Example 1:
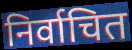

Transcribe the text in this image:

निर्वाचित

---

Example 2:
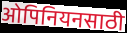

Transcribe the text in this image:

ओपिनियनसाठी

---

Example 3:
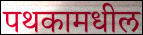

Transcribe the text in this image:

पथकामधील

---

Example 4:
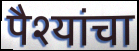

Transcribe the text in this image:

पैश्यांचा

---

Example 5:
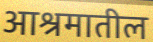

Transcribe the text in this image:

आश्रमातील